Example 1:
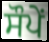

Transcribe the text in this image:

ਸੌਪੇਂ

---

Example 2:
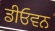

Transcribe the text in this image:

ਡੀਓਵਨ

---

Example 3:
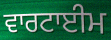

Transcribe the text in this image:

ਵਾਰਟਾਈਮ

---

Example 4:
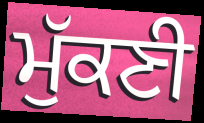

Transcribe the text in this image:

ਮੁੱਕਣੀ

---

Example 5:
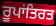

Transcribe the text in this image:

ਰੂਪਾਂਤਿਰਤ